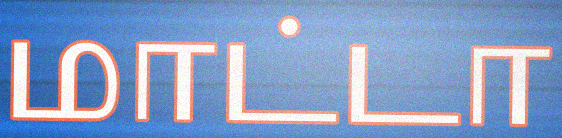
மாட்டா